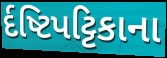
ર્દષ્ટિપટ્ટિકાના